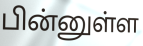
பின்னுள்ள